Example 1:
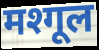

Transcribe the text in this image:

मश्गूल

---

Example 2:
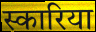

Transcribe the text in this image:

स्कारिया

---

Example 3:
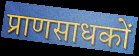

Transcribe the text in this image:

प्राणसाधकों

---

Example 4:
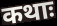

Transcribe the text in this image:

कथाः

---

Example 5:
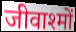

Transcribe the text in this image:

जीवाश्मों